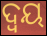
ଦ୍ୱୟ